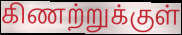
கிணற்றுக்குள்